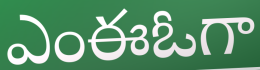
ఎంఈఓగా